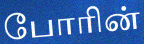
போரின்